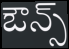
ఔన్స్